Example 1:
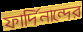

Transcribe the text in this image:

ফার্দিনান্দের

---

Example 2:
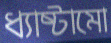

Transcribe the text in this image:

ধ্যাষ্টামো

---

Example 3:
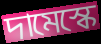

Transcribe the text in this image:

দামেস্কে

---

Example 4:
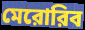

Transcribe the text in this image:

মেরোরিব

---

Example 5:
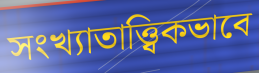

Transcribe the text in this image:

সংখ্যাতাত্ত্বিকভাবে